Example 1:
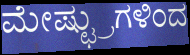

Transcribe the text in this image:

ಮೇಷ್ಟ್ರುಗಳಿಂದ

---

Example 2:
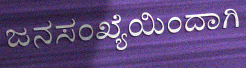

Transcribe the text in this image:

ಜನಸಂಖ್ಯೆಯಿಂದಾಗಿ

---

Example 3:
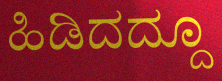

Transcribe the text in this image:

ಹಿಡಿದದ್ದೂ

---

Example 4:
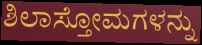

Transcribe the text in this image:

ಶಿಲಾಸ್ತೋಮಗಳನ್ನು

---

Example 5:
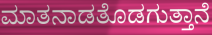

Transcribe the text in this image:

ಮಾತನಾಡತೊಡಗುತ್ತಾನೆ